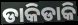
ଡାକିଡାକି